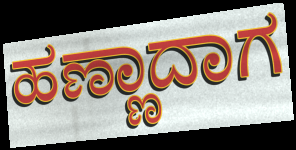
ಹಣ್ಣಾದಾಗ